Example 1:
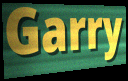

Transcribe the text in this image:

Garry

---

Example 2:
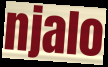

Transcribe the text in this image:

njalo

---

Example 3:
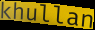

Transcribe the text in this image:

khullan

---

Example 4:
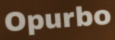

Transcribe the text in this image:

Opurbo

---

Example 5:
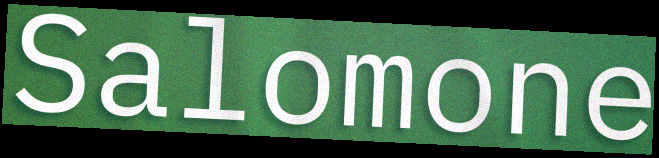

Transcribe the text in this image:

Salomone